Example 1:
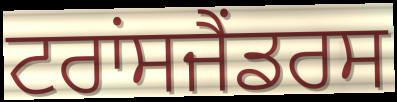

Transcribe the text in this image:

ਟਰਾਂਸਜੈਂਡਰਸ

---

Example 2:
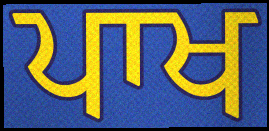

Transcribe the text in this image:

ਪਾਖ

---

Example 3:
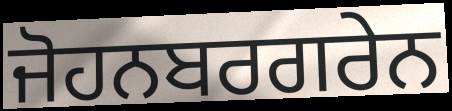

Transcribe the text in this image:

ਜੋਹਨਬਰਗਰੇਨ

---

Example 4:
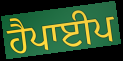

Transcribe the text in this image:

ਹੈਪਾਈਪ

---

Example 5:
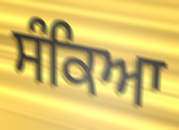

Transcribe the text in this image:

ਸੰਕਿਆ